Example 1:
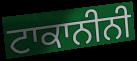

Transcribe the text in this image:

ਟਾਕਾਨੀਨੀ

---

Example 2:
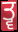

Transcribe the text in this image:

ਤ੍ਵ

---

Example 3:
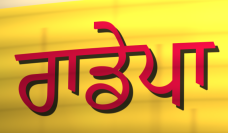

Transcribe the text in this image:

ਰਾਡੇਪਾ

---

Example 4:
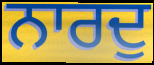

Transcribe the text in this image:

ਨਾਰਦੁ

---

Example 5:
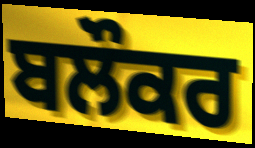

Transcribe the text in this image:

ਬਲੌਕਰ